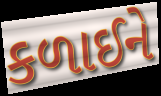
કળાઈને